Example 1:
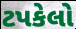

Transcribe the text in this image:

ટપકેલો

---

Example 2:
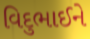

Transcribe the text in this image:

વિદુભાઈને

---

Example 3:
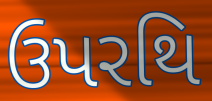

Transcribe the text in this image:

ઉપરથિ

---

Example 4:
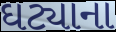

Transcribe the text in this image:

ઘટ્યાના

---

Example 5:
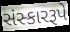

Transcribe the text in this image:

સંસ્કારરૂપે